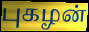
புகழன்